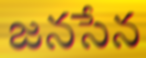
జనసేన